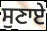
ਸੁਣਾਏ